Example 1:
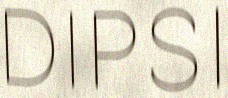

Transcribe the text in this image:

DIPSI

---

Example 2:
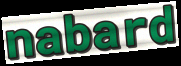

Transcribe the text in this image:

nabard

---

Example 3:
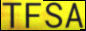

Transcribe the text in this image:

TFSA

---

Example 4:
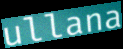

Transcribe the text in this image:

ullana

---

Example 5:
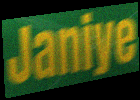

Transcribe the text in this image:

Janiye